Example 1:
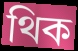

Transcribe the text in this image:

থিক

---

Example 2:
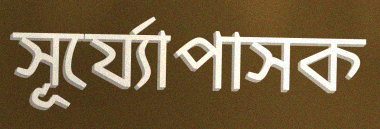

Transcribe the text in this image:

সূৰ্য্যোপাসক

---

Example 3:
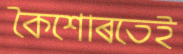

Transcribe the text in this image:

কৈশোৰতেই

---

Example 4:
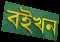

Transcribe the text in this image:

বইখন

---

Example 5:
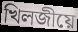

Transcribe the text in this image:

খিলজীয়ে